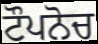
ਟੌਪਨੋਚ